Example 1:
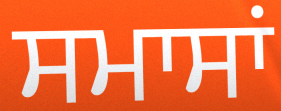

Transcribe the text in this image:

ਸਮਾਸਾਂ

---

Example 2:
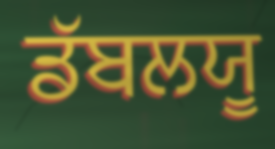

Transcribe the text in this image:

ਡੱਬਲਯੂ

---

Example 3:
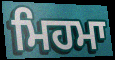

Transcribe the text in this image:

ਮਿਹਮਾ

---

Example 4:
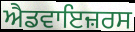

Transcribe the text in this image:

ਐਡਵਾਇਜ਼ਰਸ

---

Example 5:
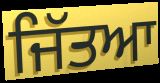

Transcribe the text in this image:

ਜਿੱਤਆ